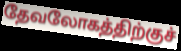
தேவலோகத்திற்குச்